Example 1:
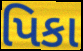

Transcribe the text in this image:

પિકા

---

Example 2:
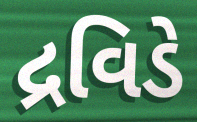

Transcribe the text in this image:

દ્રવિડે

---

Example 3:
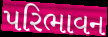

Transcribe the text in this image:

પરિભાવન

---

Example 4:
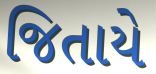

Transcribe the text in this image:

જિતાયે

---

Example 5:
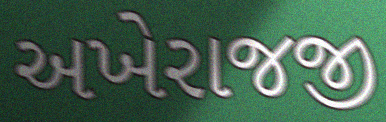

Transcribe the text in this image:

અખેરાજજી